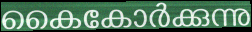
കൈകോർക്കുന്നു